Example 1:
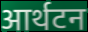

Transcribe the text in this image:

आर्थटन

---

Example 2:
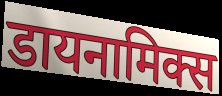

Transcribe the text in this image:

डायनामिक्स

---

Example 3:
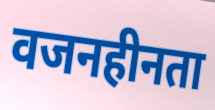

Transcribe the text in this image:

वजनहीनता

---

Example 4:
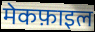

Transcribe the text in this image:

मेकफ़ाइल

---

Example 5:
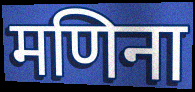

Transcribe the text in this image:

मणिना